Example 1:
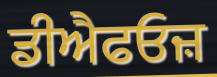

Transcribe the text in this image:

ਡੀਐਫਓਜ਼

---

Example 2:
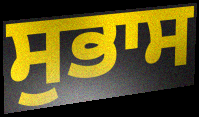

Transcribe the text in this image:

ਸੁਭਾਸ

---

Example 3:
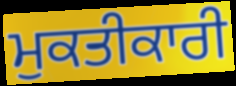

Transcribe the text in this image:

ਮੁਕਤੀਕਾਰੀ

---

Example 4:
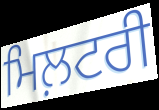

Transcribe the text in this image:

ਮਿਲ਼ਟਰੀ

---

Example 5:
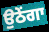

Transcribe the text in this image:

ਉਠੇਂਗਾ